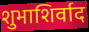
शुभाशिर्वाद